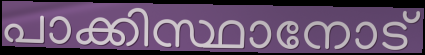
പാക്കിസ്ഥാനോട്